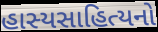
હાસ્યસાહિત્યનો